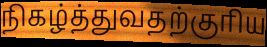
நிகழ்த்துவதற்குரிய